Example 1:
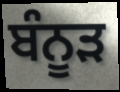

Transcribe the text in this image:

ਬੰਨੂੜ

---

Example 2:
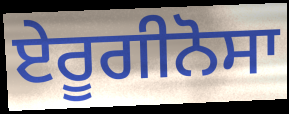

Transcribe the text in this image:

ਏਰੂਗੀਨੋਸਾ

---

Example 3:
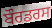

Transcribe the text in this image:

ਬੌਰਡਰਸ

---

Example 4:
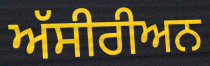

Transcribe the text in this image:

ਅੱਸੀਰੀਅਨ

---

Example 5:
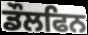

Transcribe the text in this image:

ਡੌਲਫਿਨ